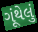
ગૂંથેલું